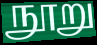
நூறு